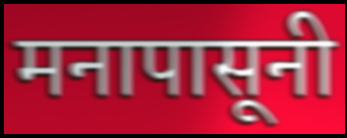
मनापासूनी